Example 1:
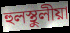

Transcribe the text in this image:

হুলস্থুলীয়া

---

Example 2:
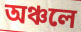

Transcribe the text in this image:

অঞ্চলে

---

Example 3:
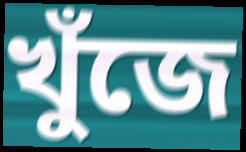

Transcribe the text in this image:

খুঁজে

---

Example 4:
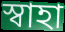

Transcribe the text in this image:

স্বাহা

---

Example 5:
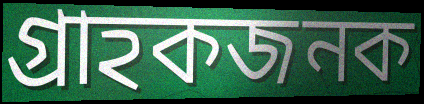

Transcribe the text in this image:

গ্ৰাহকজনক